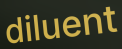
diluent